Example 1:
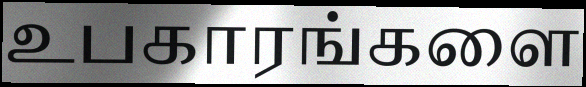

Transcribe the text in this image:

உபகாரங்களை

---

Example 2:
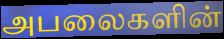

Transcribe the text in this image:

அபலைகளின்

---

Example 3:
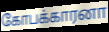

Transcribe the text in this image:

கோபக்காரனா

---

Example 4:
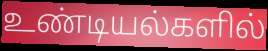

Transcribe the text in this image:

உண்டியல்களில்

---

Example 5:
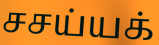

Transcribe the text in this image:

சசய்யக்